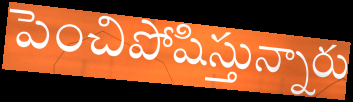
పెంచిపోషిస్తున్నారు